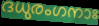
ദധുരംഗനാഃ